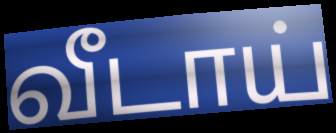
வீடாய்